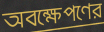
অবক্ষেপণের